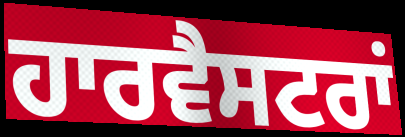
ਹਾਰਵੈਸਟਰਾਂ